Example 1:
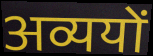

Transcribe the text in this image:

अव्ययों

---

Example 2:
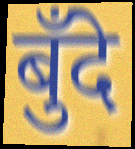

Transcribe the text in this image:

बुँदे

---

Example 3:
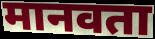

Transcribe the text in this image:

मानवता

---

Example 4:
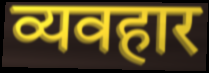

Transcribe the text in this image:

व्यवहार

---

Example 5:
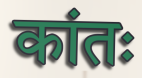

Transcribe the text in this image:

कांतः